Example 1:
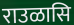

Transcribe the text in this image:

राउळासि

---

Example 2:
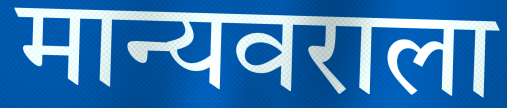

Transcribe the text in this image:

मान्यवराला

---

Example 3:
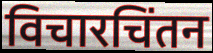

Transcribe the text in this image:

विचारचिंतन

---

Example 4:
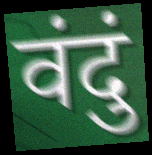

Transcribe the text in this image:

वंदुं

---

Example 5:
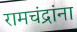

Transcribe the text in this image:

रामचंद्रांना